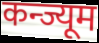
कन्ज्यूम